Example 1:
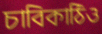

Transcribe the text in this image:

চাবিকাঠিও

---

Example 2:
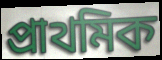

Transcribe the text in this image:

প্রাথমিক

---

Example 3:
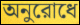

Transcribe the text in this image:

অনুরোধে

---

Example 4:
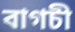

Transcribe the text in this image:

বাগচী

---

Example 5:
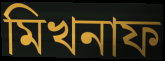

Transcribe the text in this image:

মিখনাফ